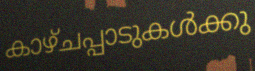
കാഴ്ചപ്പാടുകൾക്കു